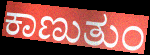
ಕಾಣುತುಂ